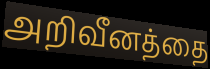
அறிவீனத்தை